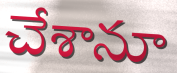
చేశానూ